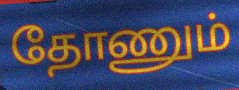
தோணும்